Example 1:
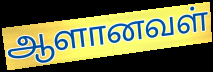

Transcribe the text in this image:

ஆளானவள்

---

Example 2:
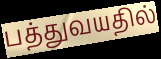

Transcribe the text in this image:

பத்துவயதில்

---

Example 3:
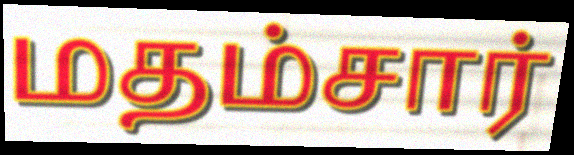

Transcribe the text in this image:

மதம்சார்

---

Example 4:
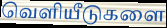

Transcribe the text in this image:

வெளியீடுகளை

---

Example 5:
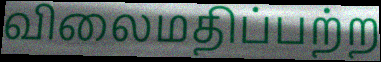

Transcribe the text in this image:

விலைமதிப்பற்ற